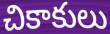
చికాకులు